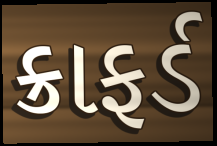
ક્રાફર્ડ